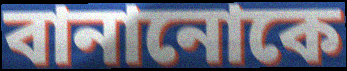
বানানোকে